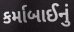
કર્માબાઈનું